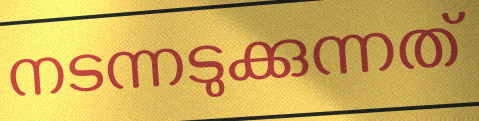
നടന്നടുക്കുന്നത്